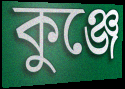
কুঞ্জে